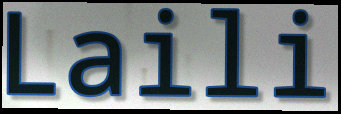
Laili